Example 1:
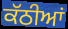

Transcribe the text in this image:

ਕੱਠੀਆਂ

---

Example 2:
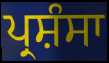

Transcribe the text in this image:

ਪ੍ਰਸ਼ੰਸਾ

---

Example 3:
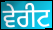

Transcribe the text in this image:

ਵੇਰੀਟ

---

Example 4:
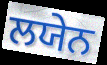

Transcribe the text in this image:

ਲਯੇਨ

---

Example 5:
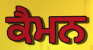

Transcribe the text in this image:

ਕੈਮਨ